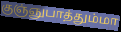
குஞ்ஞுபாத்தும்மா